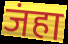
जंहा